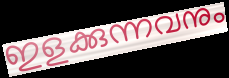
ഇളക്കുന്നവനും